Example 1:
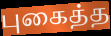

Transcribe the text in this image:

புகைத்த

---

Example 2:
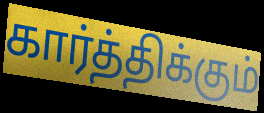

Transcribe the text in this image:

கார்த்திக்கும்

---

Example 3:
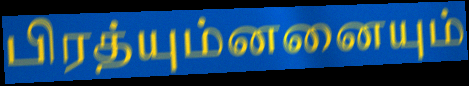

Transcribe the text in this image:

பிரத்யும்னனையும்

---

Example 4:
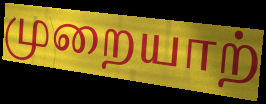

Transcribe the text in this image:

முறையாற்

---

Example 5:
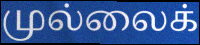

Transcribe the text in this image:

முல்லைக்